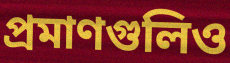
প্রমাণগুলিও